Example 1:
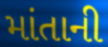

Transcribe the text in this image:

માંતાની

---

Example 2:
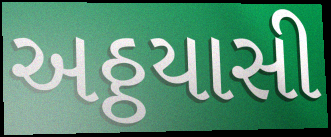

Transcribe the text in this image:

અઠ્ઠયાસી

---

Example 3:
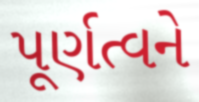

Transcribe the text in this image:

પૂર્ણત્વને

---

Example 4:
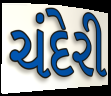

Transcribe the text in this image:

ચંદેરી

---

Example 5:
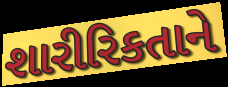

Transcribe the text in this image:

શારીરિકતાને